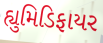
હ્યુમિડિફાયર